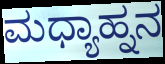
ಮಧ್ಯಾಹ್ನನ